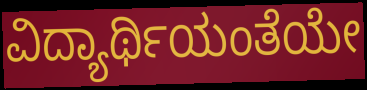
ವಿದ್ಯಾರ್ಥಿಯಂತೆಯೇ